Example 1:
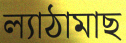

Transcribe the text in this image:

ল্যাঠামাছ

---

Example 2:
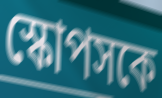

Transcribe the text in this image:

স্কোপসকে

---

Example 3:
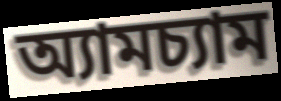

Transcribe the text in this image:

অ্যামচ্যাম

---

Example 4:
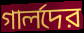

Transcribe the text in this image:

গার্লদের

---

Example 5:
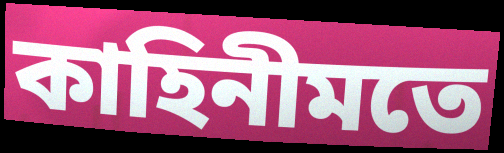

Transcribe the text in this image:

কাহিনীমতে